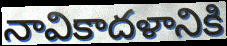
నావికాదళానికి